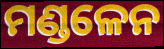
ମଣ୍ଡଳେନ